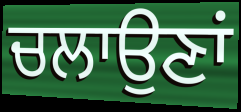
ਚਲਾਉਣਾਂ